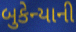
બુકેન્યાની